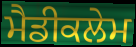
ਮੈਡੀਕਲੇਮ